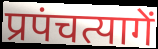
प्रपंचत्यागें